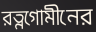
রত্নগোমীনের